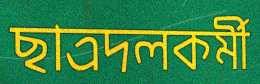
ছাত্রদলকর্মী